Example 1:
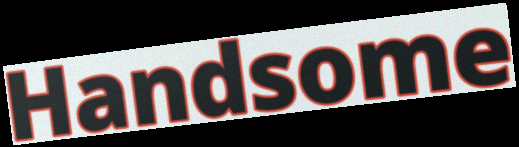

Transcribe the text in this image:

Handsome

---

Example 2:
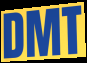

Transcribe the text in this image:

DMT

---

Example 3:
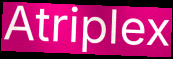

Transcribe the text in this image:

Atriplex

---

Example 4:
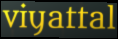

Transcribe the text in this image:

viyattal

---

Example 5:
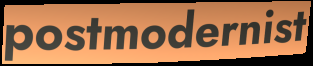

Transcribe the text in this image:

postmodernist